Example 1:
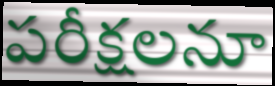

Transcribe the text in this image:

పరీక్షలనూ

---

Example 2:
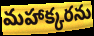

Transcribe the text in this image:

మహాక్కరను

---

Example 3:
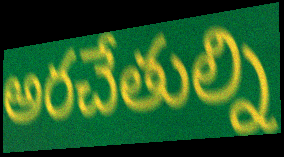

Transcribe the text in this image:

అరచేతుల్ని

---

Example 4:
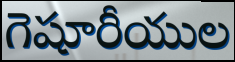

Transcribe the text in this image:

గెషూరీయుల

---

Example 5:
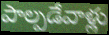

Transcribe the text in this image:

పాల్పడేవాళ్లు